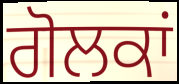
ਗੋਲਕਾਂ